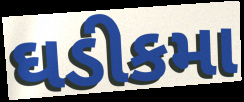
ઘડીકમા